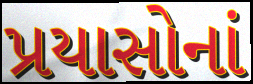
પ્રયાસોનાં